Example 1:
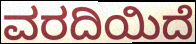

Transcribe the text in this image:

ವರದಿಯಿದೆ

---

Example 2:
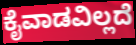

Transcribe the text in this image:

ಕೈವಾಡವಿಲ್ಲದೆ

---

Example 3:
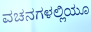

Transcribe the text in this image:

ವಚನಗಳಲ್ಲಿಯೂ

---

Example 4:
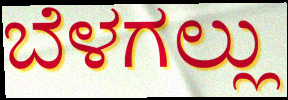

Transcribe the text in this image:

ಬೆಳಗಲ್ಲು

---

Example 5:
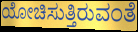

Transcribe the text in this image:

ಯೋಚಿಸುತ್ತಿರುವಂತೆ